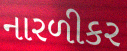
નારળીકર